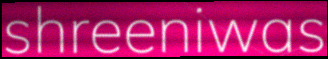
shreeniwas